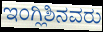
ಇಂಗ್ಲಿಶಿನವರು